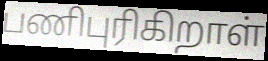
பணிபுரிகிறாள்